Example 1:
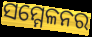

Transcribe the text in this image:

ସମ୍ମେଳନର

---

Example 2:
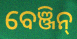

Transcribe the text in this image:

ବେଞ୍ଜିନ୍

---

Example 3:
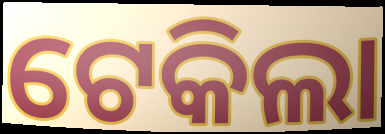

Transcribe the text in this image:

ଟେକିଲା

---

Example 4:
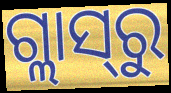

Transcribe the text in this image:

ଗ୍ଲାସ୍‍ରୁ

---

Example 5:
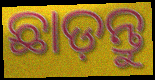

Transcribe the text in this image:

ଛାଡ଼ନ୍ତୁ